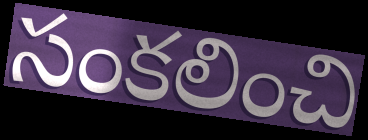
సంకలించి